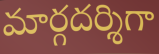
మార్గదర్శిగా